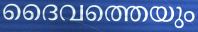
ദൈവത്തെയും